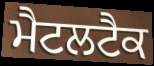
ਮੈਟਲਟੈਕ